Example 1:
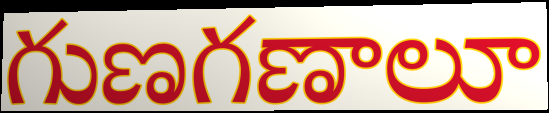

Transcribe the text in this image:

గుణగణాలూ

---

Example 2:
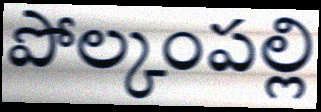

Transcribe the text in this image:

పోల్కంపల్లి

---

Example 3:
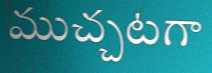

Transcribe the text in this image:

ముచ్చటగా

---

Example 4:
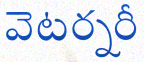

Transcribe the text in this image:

వెటర్నరీ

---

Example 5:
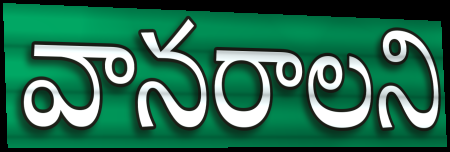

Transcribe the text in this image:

వానరాలని